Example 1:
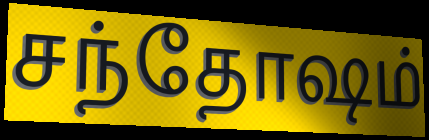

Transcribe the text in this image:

சந்தோஷம்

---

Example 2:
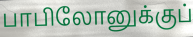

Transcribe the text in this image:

பாபிலோனுக்குப்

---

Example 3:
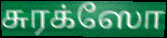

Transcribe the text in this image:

சுரக்ஸோ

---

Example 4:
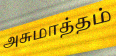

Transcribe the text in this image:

அசுமாத்தம்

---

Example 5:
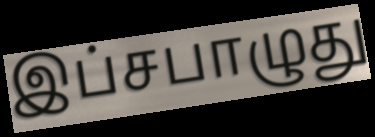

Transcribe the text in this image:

இப்சபாழுது